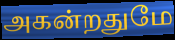
அகன்றதுமே